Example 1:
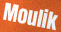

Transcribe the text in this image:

Moulik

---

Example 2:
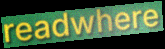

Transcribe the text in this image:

readwhere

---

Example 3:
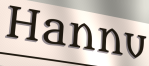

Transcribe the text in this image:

Hannu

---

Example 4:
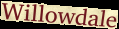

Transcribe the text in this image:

Willowdale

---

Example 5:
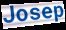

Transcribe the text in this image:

Josep